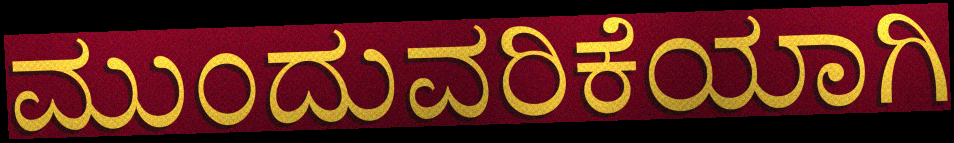
ಮುಂದುವರಿಕೆಯಾಗಿ